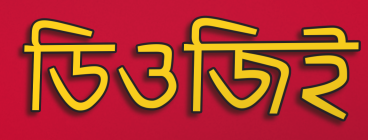
ডিওজিই